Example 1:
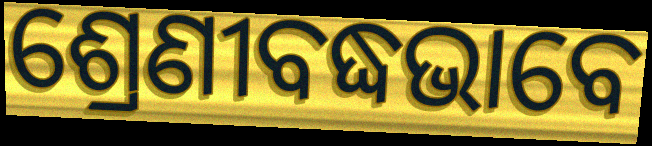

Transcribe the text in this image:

ଶ୍ରେଣୀବଦ୍ଧଭାବେ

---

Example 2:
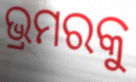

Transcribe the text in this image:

ଭ୍ରମରକୁ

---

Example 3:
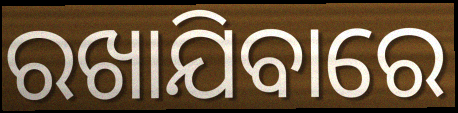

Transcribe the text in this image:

ରଖାଯିବାରେ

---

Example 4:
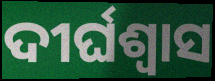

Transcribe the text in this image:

ଦୀର୍ଘଶ୍ଵାସ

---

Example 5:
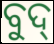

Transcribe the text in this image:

ବୁଦ୍